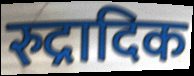
रुद्रादिक